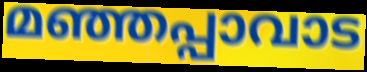
മഞ്ഞപ്പാവാട